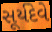
સૂર્યદેવે